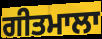
ਗੀਤਮਾਲਾ